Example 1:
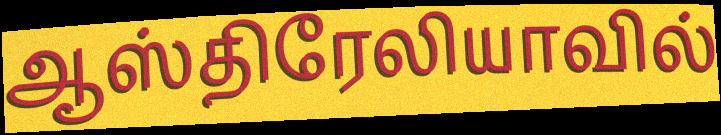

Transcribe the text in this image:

ஆஸ்திரேலியாவில்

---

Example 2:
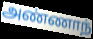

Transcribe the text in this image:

அண்ணாந்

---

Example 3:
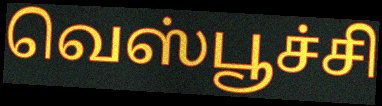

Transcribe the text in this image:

வெஸ்பூச்சி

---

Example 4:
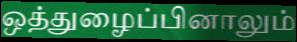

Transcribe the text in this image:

ஒத்துழைப்பினாலும்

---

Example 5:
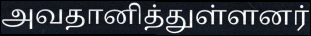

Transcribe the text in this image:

அவதானித்துள்ளனர்